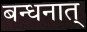
बन्धनात्